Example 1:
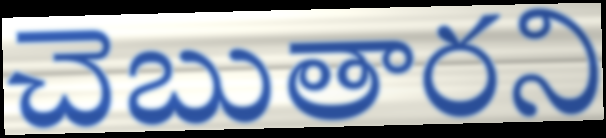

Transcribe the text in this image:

చెబుతారని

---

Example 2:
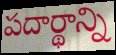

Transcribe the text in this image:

పదార్థాన్ని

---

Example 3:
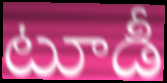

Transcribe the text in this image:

టూడీ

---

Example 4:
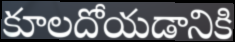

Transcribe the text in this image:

కూలదోయడానికి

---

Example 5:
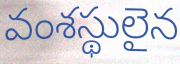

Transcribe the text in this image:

వంశస్థులైన